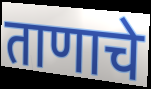
ताणाचे